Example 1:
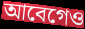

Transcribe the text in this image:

আবেগেও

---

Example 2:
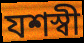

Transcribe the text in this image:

যশস্বী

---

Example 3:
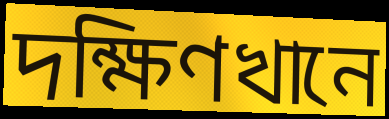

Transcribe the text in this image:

দক্ষিণখানে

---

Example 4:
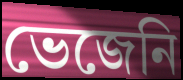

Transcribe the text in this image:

ভেজেনি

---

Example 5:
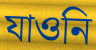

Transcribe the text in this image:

যাওনি